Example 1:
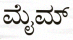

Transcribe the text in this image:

ಮೈಮ್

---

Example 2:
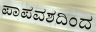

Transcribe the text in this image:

ಪಾಪವಶದಿಂದ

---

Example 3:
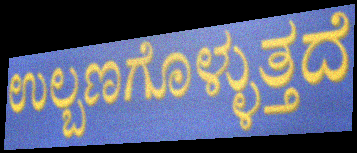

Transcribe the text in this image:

ಉಲ್ಬಣಗೊಳ್ಳುತ್ತದೆ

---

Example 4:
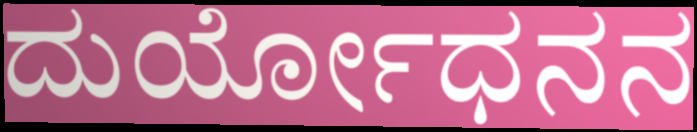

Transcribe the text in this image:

ದುರ್ಯೋಧನನ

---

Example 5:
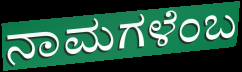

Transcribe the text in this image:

ನಾಮಗಳೆಂಬ